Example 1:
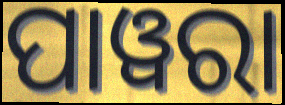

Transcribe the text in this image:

ପାୱରା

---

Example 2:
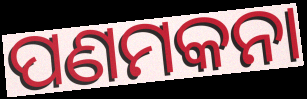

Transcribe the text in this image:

ପଣମକନା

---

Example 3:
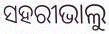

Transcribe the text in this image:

ସହରୀଭାଲୁ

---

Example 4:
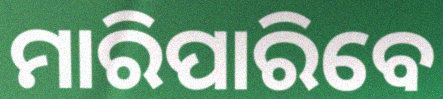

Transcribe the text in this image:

ମାରିପାରିବେ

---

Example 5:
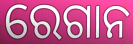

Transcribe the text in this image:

ରେଗାନ